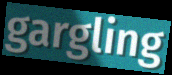
gargling